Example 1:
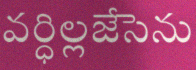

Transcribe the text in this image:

వర్ధిల్లజేసెను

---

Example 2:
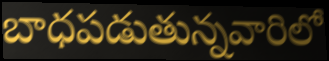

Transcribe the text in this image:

బాధపడుతున్నవారిలో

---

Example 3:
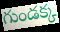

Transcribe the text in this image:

గుండక్క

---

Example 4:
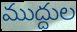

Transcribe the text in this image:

ముద్దుల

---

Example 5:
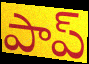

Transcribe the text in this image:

పాప్